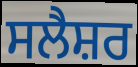
ਸਲੈਸ਼ਰ